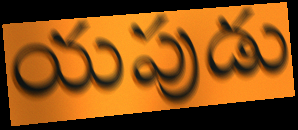
యపుడు